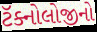
ટૅક્નોલોજીનો